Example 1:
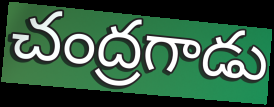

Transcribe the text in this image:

చంద్రగాడు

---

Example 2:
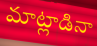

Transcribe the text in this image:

మాట్లాడినా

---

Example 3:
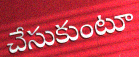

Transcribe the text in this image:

చేసుకుంటూ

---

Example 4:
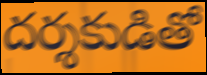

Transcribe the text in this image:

దర్శకుడితో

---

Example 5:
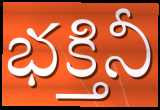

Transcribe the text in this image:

భక్తినీ